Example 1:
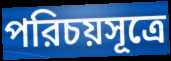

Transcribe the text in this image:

পরিচয়সূত্রে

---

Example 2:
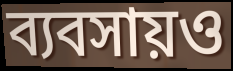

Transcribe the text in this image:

ব্যবসায়ও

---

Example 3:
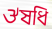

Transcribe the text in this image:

ঔষধি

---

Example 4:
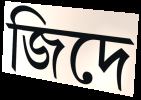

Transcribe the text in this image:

জিদে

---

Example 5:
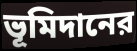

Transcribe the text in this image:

ভূমিদানের